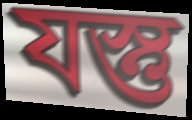
যস্তু